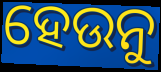
ହେଉନୁ